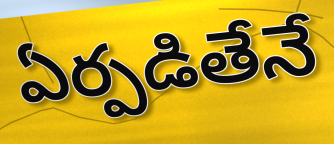
ఏర్పడితేనే